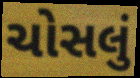
ચોસલું